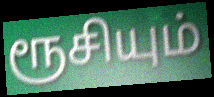
ரூசியும்